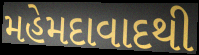
મહેમદાવાદથી